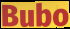
Bubo